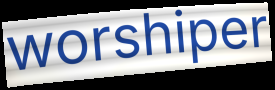
worshiper